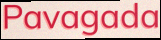
Pavagada